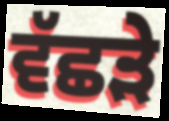
ਵੱਛੜੇ